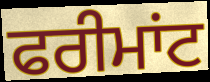
ਫਰੀਮਾਂਟ